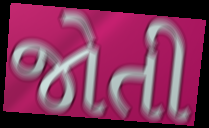
જોતી